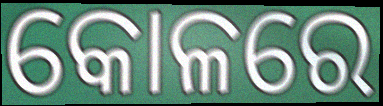
କୋଳରେ